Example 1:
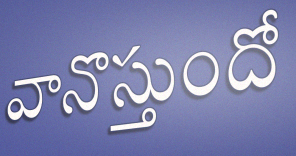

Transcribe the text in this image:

వానొస్తుందో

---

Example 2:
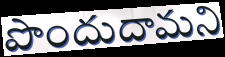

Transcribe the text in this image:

పొందుదామని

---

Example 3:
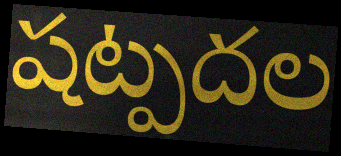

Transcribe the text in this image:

షట్పదల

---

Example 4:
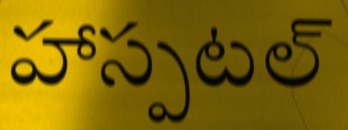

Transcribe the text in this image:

హాస్పటల్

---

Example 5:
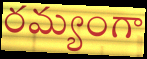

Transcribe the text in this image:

రమ్యంగా